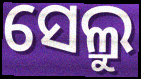
ସେଲ୍ରୁ